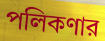
পলিকণার